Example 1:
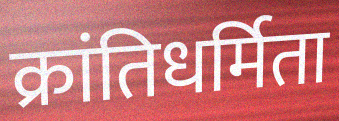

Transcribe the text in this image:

क्रांतिधर्मिता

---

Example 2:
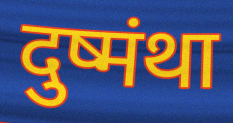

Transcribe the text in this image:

दुष्मंथा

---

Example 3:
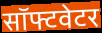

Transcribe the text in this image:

सॉफ्टवेटर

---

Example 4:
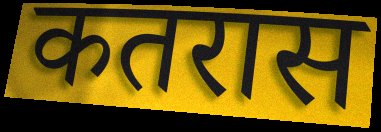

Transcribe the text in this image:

कतरास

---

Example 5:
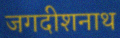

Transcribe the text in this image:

जगदीशनाथ